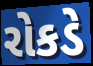
રોકડે